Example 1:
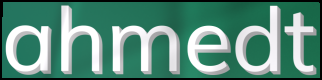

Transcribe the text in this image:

ahmedt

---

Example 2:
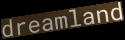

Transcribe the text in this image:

dreamland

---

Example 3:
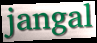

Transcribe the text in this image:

jangal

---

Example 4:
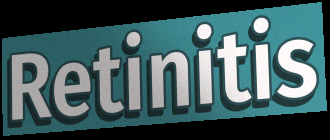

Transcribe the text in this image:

Retinitis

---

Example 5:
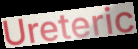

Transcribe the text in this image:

Ureteric